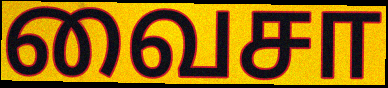
வைசா